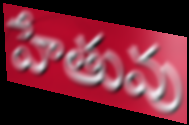
హేతువు